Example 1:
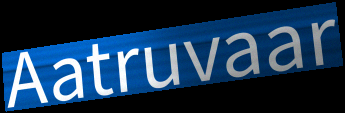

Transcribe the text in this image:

Aatruvaar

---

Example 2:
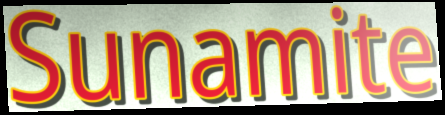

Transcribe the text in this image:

Sunamite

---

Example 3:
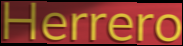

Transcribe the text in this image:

Herrero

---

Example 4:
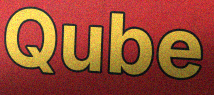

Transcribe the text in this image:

Qube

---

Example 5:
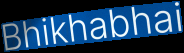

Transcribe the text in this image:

Bhikhabhai